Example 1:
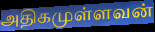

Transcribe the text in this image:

அதிகமுள்ளவன்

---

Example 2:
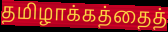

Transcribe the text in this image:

தமிழாக்கத்தைத்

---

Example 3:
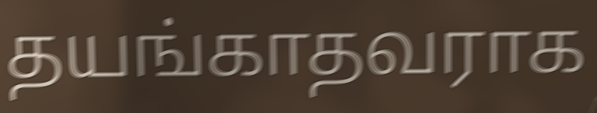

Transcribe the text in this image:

தயங்காதவராக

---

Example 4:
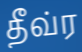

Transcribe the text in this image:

தீவ்ர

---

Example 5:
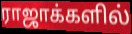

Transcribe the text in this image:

ராஜாக்களில்